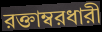
রক্তাম্বরধারী